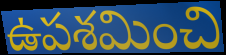
ఉపశమించి